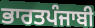
ਭਾਰਤਪੰਜਾਬੀ